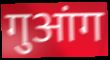
गुआंग